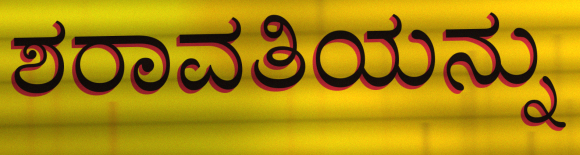
ಶರಾವತಿಯನ್ನು